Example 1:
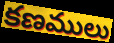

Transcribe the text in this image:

కణములు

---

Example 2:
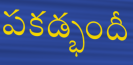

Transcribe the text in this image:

పకడ్భందీ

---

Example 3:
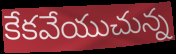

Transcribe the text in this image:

కేకవేయుచున్న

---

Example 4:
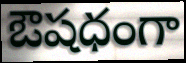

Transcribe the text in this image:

ఔషధంగా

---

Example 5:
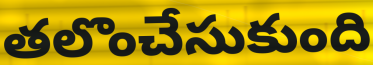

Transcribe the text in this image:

తలొంచేసుకుంది